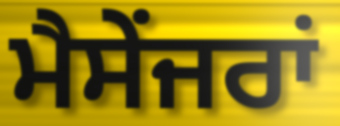
ਮੈਸੇਂਜਰਾਂ